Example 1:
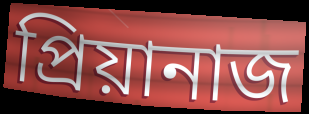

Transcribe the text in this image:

প্রিয়ানাজ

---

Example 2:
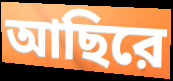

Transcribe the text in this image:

আছিরে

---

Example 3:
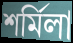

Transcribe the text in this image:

শর্মিলা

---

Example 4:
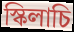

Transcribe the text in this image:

স্কিলাচি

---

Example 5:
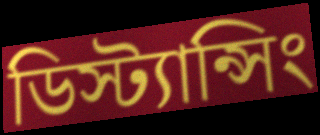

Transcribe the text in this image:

ডিস্ট্যান্সিং